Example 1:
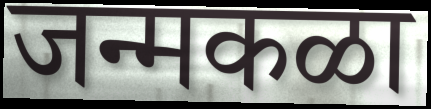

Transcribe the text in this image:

जन्मकळा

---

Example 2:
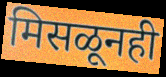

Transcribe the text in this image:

मिसळूनही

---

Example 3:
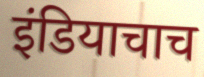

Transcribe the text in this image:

इंडियाचाच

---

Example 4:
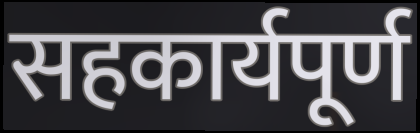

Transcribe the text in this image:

सहकार्यपूर्ण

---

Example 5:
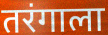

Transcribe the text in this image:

तरंगाला